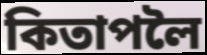
কিতাপলৈ